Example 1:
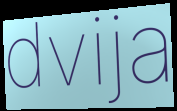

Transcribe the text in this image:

dvija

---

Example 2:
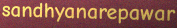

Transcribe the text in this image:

sandhyanarepawar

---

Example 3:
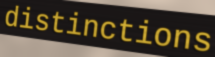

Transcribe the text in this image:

distinctions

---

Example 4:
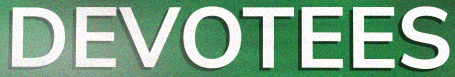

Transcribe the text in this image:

DEVOTEES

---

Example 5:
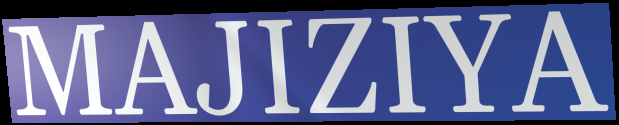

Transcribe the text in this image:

MAJIZIYA